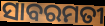
ସାବରମତୀ